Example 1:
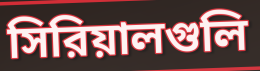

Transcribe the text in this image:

সিরিয়ালগুলি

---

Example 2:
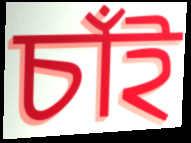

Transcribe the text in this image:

চাঁই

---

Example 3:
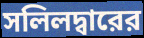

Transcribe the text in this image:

সলিলদ্বারের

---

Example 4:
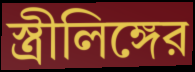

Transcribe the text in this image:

স্ত্রীলিঙ্গের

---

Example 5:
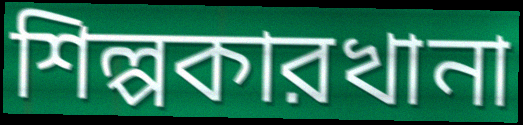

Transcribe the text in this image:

শিল্পকারখানা